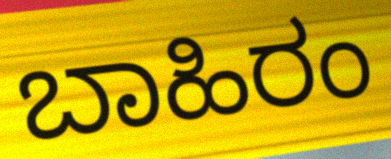
ಬಾಹಿರಂ